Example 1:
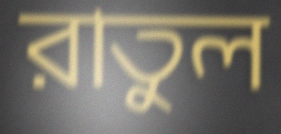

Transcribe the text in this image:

রাতুল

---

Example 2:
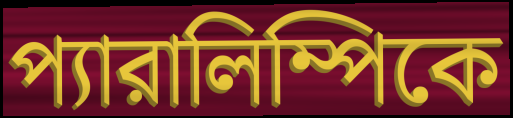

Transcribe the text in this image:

প্যারালিম্পিকে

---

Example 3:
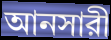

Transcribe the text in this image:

আনসারী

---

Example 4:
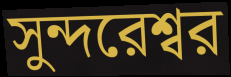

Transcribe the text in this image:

সুন্দরেশ্বর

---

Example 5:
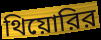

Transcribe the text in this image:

থিয়োরির